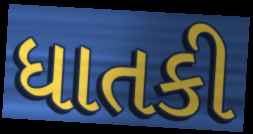
ધાતકી